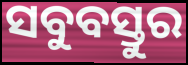
ସବୁବସ୍ତୁର